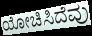
ಯೋಚಿಸಿದೆವು